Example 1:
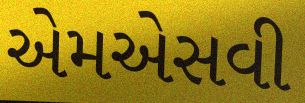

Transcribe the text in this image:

એમએસવી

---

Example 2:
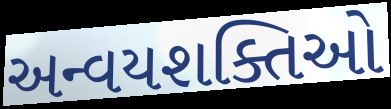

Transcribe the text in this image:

અન્વયશક્તિઓ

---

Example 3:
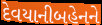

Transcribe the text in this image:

દેવયાનીબહેનને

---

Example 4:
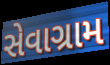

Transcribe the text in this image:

સેવાગ્રામ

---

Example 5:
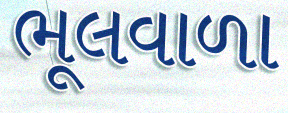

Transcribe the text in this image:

ભૂલવાળા